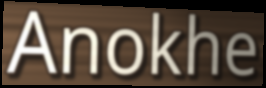
Anokhe